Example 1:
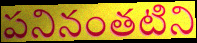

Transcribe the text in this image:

పనినంతటిని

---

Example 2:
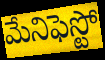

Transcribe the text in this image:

మేనిఫెస్టో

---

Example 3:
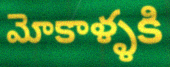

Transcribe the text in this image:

మోకాళ్ళకి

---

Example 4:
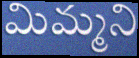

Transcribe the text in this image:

మిమ్మని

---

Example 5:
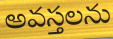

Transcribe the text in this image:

అవస్తలను